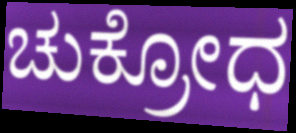
ಚುಕ್ರೋಧ